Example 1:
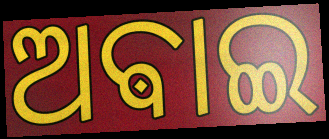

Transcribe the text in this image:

ଅଵାଇ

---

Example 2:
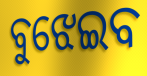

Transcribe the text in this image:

ବୁଝେଇବ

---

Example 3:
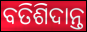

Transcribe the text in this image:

ବତିଶିଦାନ୍ତ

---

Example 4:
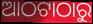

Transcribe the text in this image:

ଆଠଟାଠାରୁ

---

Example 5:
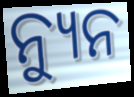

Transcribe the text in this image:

ନ୍ୟୁନ